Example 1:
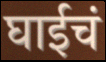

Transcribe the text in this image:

घाईचं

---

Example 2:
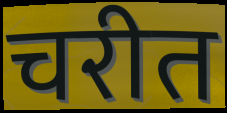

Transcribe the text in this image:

चरीत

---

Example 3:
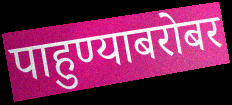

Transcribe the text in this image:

पाहुण्याबरोबर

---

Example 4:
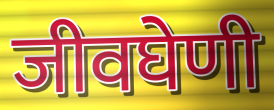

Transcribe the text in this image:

जीवघेणी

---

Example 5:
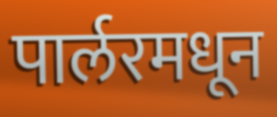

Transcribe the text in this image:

पार्लरमधून